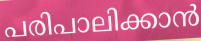
പരിപാലിക്കാൻ